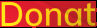
Donat